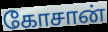
கோசான்